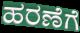
ಹರಣೆಗೆ